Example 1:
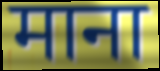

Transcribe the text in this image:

माना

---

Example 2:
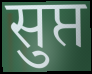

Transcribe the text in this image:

सुप्त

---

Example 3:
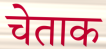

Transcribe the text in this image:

चेताक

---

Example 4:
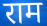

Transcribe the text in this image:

राम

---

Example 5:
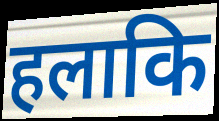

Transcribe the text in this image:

हलाकि